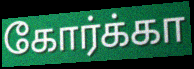
கோர்க்கா